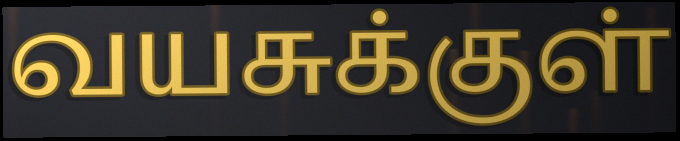
வயசுக்குள்